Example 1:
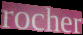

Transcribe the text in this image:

rocher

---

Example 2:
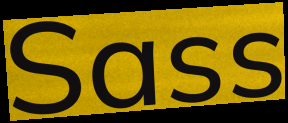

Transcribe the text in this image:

Sass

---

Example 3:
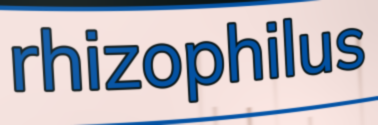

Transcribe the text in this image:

rhizophilus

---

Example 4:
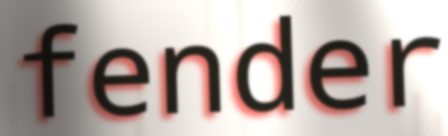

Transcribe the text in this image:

fender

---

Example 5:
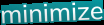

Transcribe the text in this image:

minimize